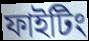
ফাইটিং